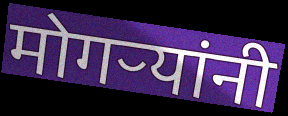
मोगऱ्यांनी